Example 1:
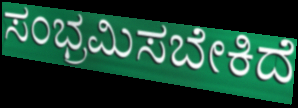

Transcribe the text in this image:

ಸಂಭ್ರಮಿಸಬೇಕಿದೆ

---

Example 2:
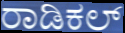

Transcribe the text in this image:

ರಾಡಿಕಲ್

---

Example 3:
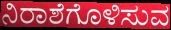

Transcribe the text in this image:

ನಿರಾಶೆಗೊಳಿಸುವ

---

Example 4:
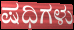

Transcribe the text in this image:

ಷಧಿಗಳು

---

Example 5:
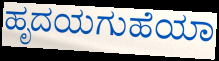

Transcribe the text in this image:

ಹೃದಯಗುಹೆಯಾ